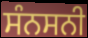
ਸੰਨਸਨੀ